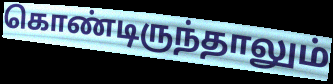
கொண்டிருந்தாலும்